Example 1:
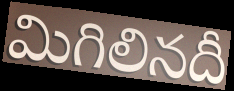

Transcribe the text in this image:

మిగిలినదీ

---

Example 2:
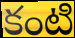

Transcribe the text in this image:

కంటి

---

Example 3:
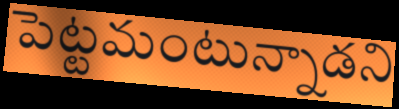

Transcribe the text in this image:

పెట్టమంటున్నాడని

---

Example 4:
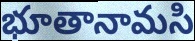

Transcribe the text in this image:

భూతానామసి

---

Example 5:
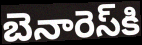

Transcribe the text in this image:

బెనారెస్‌కి